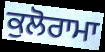
ਕੁਲੋਰਾਮਾ